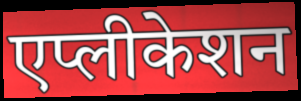
एप्‍लीकेशन